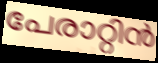
പേരാറ്റിൻ